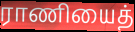
ராணியைத்